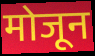
मोजून